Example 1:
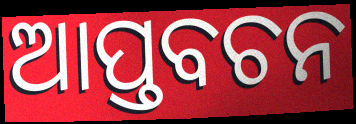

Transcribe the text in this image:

ଆପ୍ତବଚନ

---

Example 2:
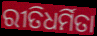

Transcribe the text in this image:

ରୀତିଧର୍ମିତା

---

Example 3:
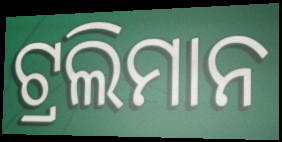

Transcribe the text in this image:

ଟ୍ରଲିମାନ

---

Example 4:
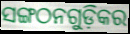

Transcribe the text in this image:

ସଙ୍ଗଠନଗୁଡ଼ିକର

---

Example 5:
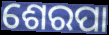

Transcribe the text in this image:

ଶେରପା